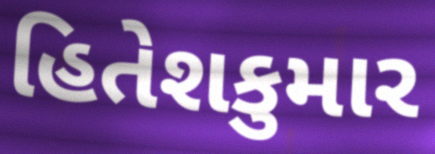
હિતેશકુમાર